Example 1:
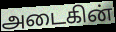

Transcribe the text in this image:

அடைகின்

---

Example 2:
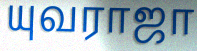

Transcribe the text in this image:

யுவராஜா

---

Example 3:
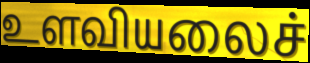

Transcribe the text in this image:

உளவியலைச்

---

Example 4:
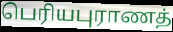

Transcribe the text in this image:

பெரியபுராணத்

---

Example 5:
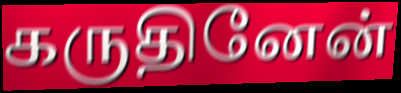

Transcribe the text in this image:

கருதினேன்